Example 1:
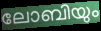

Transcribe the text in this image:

ലോബിയും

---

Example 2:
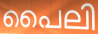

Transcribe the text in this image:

പൈലി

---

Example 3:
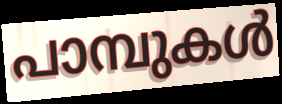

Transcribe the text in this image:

പാമ്പുകൾ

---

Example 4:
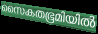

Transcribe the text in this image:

സൈകതഭൂമിയിൽ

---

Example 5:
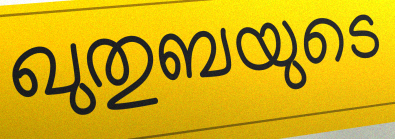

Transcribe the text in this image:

ഖുതുബയുടെ